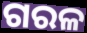
ଗରଳ